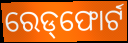
ରେଡ୍‌ଫୋର୍ଟ